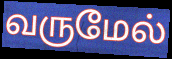
வருமேல்